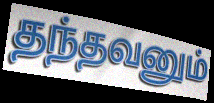
தந்தவனும்